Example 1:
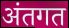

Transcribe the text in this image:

अंतगत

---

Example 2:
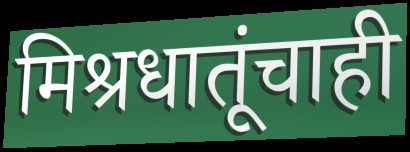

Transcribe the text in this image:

मिश्रधातूंचाही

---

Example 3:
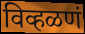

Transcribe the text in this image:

विव्हळणं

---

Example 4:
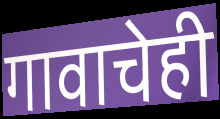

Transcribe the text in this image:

गावाचेही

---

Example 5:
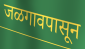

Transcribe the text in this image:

जळगावपासून